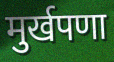
मुर्खपणा